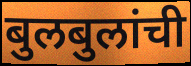
बुलबुलांची